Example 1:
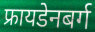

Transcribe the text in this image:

फ्रायडेनबर्ग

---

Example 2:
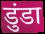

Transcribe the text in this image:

डुंडा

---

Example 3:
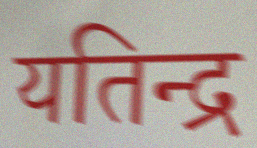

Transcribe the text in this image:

यतिन्द्र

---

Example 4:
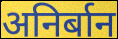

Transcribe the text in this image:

अनिर्बान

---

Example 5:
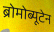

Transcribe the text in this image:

ब्रोमोब्यूटेन